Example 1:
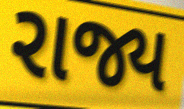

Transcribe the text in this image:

રાજ્ય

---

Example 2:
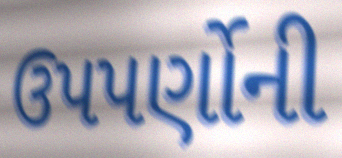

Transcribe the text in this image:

ઉપપર્ણોની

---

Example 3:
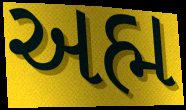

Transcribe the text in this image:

અહ્મ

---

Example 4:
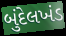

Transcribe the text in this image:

બુંદેલખંડ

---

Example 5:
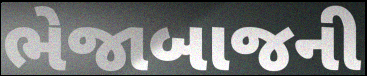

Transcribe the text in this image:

ભેજાબાજની